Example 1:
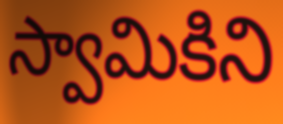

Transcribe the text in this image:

స్వామికిని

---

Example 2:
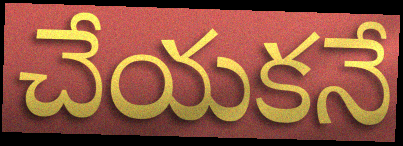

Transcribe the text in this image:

చేయకనే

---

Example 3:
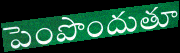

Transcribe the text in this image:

పెంపొందుతూ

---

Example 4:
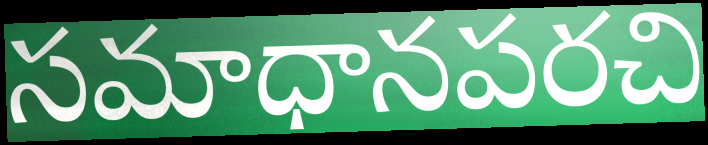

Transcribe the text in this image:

సమాధానపరచి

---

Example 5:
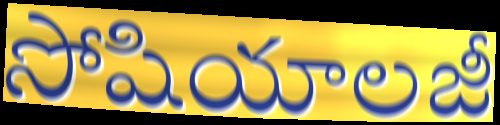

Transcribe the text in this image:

సోషియాలజీ